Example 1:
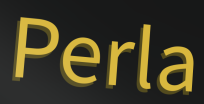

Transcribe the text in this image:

Perla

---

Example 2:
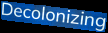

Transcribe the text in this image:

Decolonizing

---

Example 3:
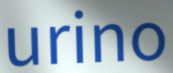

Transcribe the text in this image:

urino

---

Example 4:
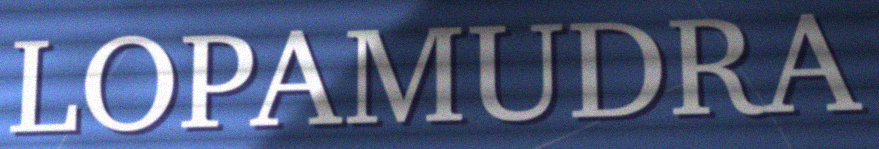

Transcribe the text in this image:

LOPAMUDRA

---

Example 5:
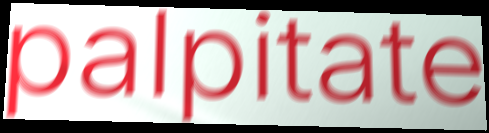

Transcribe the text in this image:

palpitate